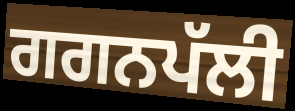
ਗਗਨਪੱਲੀ